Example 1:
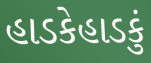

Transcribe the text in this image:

હાડકેહાડકું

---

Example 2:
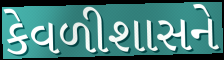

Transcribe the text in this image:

કેવળીશાસને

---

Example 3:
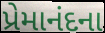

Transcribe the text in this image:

પ્રેમાનંદના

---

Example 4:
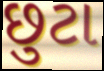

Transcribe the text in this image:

છુટા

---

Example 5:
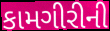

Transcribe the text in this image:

કામગીરીની